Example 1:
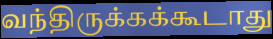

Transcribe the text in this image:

வந்திருக்கக்கூடாது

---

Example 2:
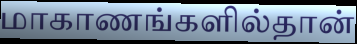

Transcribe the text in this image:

மாகாணங்களில்தான்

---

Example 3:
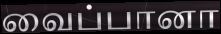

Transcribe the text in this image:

வைப்பானா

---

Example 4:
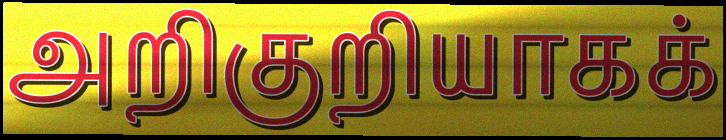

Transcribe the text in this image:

அறிகுறியாகக்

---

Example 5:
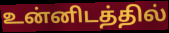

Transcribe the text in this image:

உன்னிடத்தில்